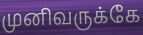
முனிவருக்கே